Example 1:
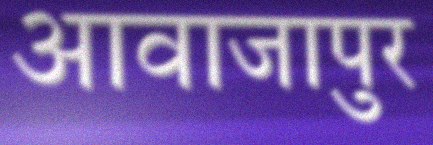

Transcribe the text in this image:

आवाजापुर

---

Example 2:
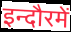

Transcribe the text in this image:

इन्दौरमें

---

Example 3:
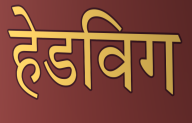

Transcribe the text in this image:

हेडविग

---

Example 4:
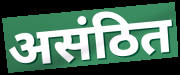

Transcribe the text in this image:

असंठित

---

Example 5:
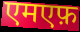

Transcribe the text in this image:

एमएफ़